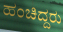
ಹಂಚಿದ್ದರು